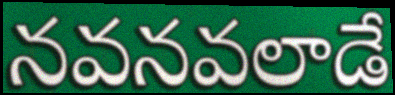
నవనవలాడే